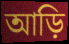
আড়ি